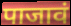
पाजावं